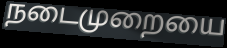
நடைமுறையை